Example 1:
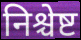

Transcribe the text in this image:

निश्चेष्ट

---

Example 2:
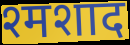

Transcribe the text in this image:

श्मशाद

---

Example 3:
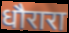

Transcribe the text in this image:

धौरारा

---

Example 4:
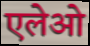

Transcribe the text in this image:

एलेओ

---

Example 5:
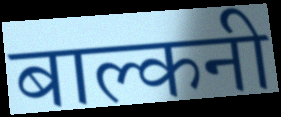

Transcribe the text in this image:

बाल्कनी